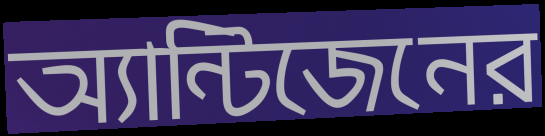
অ্যান্টিজেনের